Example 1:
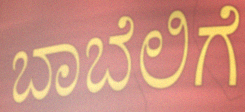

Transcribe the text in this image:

ಬಾಬೆಲಿಗೆ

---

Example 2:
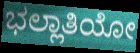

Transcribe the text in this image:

ಭಲ್ಲಾತಿಯೋ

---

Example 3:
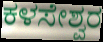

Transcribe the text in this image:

ಕಳಸೇಶ್ವರ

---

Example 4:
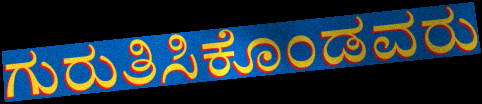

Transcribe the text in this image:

ಗುರುತಿಸಿಕೊಂಡವರು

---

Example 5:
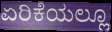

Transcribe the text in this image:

ಏರಿಕೆಯಲ್ಲೂ